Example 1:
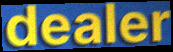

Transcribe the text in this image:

dealer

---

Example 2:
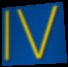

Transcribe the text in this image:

IV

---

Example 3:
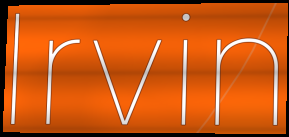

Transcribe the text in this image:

Irvin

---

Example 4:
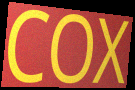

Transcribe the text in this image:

COX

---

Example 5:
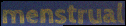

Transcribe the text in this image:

menstrual